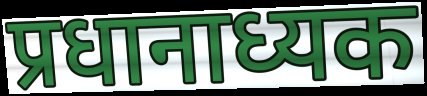
प्रधानाध्यक